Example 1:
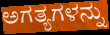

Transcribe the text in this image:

ಅಗತ್ಯಗಳನ್ನು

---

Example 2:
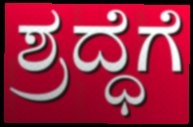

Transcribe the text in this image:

ಶ್ರದ್ಧೆಗೆ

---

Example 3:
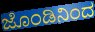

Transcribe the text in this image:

ಜೊಂಡಿನಿಂದ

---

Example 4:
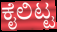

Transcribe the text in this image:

ಕೈಲಿಟ್ಟ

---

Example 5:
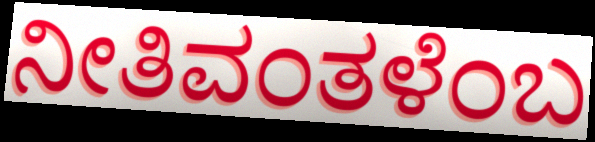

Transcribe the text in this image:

ನೀತಿವಂತಳೆಂಬ